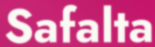
Safalta